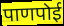
पाणपोई